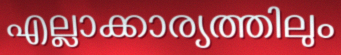
എല്ലാക്കാര്യത്തിലും